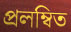
প্রলম্বিত